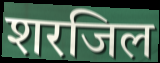
शरजिल